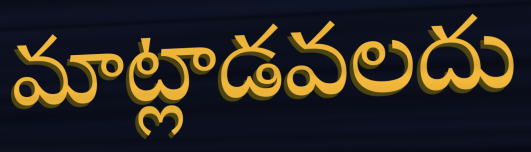
మాట్లాడవలదు